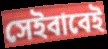
সেইবাবেই